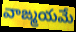
వాఙ్మయమే